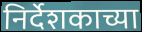
निर्देशकाच्या